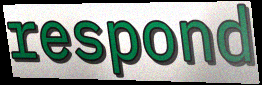
respond